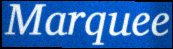
Marquee